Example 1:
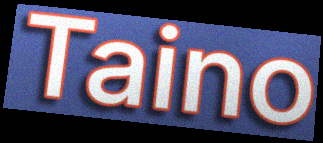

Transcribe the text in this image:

Taino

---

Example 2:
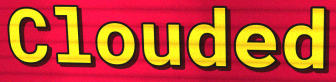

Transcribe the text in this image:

Clouded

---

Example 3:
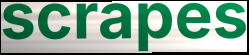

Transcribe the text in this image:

scrapes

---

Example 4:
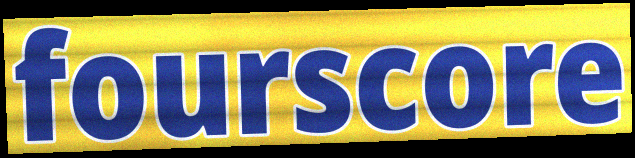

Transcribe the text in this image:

fourscore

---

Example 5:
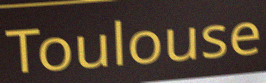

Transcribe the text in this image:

Toulouse